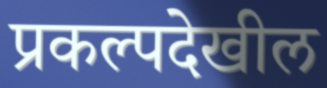
प्रकल्पदेखील